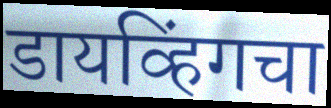
डायव्हिंगचा